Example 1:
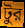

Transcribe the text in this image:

টুর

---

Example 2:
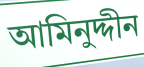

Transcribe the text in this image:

আমিনুদ্দীন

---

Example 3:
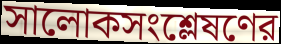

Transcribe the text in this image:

সালোকসংশ্লেষণের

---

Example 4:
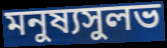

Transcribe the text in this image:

মনুষ্যসুলভ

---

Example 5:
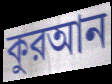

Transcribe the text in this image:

কুরআন